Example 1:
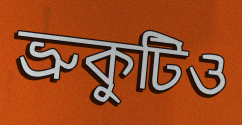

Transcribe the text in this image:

ভ্রুকুটিও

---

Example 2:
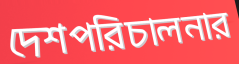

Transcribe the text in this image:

দেশপরিচালনার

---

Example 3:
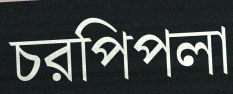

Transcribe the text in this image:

চরপিপলা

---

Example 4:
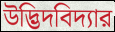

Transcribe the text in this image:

উদ্ভিদবিদ্যার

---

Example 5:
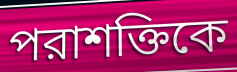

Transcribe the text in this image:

পরাশক্তিকে